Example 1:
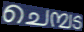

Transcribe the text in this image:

ചെമ്പട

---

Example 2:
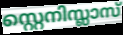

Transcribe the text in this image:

സ്റ്റെനിസ്ലാസ്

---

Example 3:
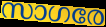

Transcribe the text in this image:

സാഗരേ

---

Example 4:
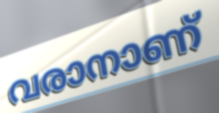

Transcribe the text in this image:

വരാനാണ്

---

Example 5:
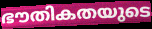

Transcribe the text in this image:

ഭൗതികതയുടെ